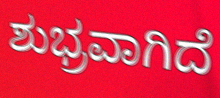
ಶುಭ್ರವಾಗಿದೆ